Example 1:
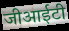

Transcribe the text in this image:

जीआईटी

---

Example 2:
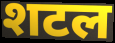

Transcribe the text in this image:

शटल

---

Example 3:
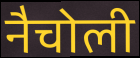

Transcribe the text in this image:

नैचोली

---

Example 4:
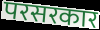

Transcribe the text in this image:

परसरकार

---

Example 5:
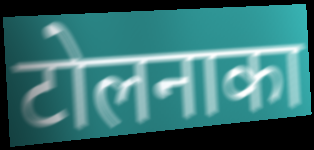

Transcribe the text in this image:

टोलनाका